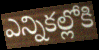
ఎన్నికల్లోకి